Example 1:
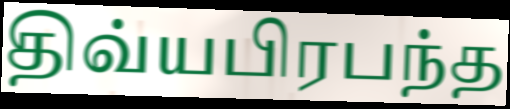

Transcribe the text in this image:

திவ்யபிரபந்த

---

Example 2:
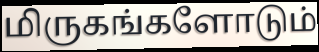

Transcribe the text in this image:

மிருகங்களோடும்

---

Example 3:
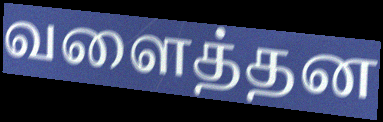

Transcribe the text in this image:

வளைத்தன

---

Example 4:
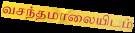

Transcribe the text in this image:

வசந்தமாலையிடம்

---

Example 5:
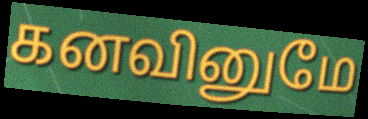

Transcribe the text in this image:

கனவினுமே